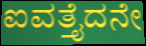
ಐವತ್ತೈದನೇ